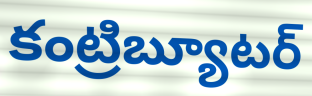
కంట్రిబ్యూటర్